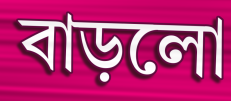
বাড়লো